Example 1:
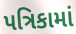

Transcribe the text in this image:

પત્રિકામાં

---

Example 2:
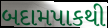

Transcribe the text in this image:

બદામપાકથી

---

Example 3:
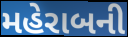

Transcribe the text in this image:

મહેરાબની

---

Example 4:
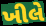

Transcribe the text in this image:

ખીલે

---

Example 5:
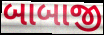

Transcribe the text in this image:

બાબાજી